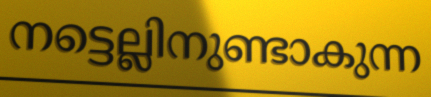
നട്ടെല്ലിനുണ്ടാകുന്ന